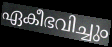
ഏകീഭവിച്ചും